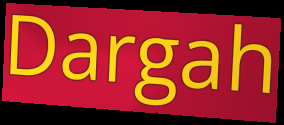
Dargah